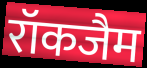
रॉकजैम